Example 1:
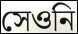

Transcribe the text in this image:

সেওনি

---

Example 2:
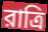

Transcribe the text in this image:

রাত্রি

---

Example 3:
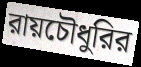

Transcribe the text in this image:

রায়চৌধুরির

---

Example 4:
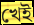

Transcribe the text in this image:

খেই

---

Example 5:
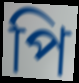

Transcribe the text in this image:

পি